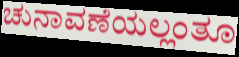
ಚುನಾವಣೆಯಲ್ಲಂತೂ